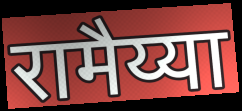
रामैय्या